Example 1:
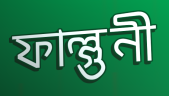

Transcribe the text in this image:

ফাল্গুনী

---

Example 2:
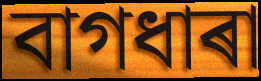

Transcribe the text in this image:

বাগধাৰা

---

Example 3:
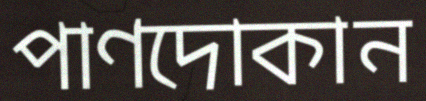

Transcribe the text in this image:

পাণদোকান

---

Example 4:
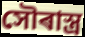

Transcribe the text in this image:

সৌৰাস্ত্ৰ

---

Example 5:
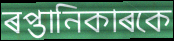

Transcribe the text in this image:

ৰপ্তানিকাৰকে